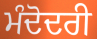
ਮੰਦੋਦਰੀ